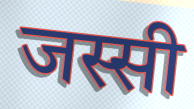
जस्सी